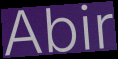
Abir